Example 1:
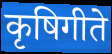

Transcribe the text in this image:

कृषिगीते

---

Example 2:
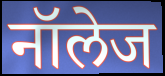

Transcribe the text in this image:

नॉलेज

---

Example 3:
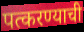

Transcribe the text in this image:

पत्करण्याची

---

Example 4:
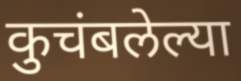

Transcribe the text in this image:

कुचंबलेल्या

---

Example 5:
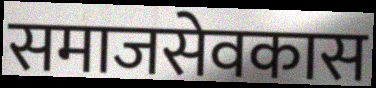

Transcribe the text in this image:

समाजसेवकास